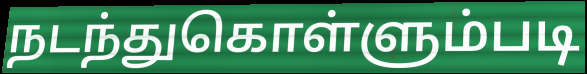
நடந்துகொள்ளும்படி